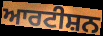
ਆਰਟੀਸ਼ਨ